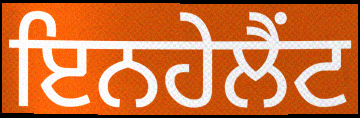
ਇਨਹੇਲੈਂਟ